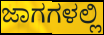
ಜಾಗಗಳಲ್ಲಿ